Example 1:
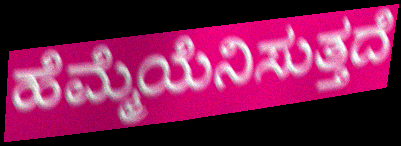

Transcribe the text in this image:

ಹೆಮ್ಮೆಯೆನಿಸುತ್ತದೆ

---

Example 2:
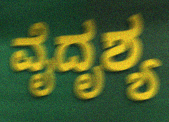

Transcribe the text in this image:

ವೈದೃಶ್ಯ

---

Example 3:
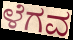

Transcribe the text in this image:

ಳೆಗವ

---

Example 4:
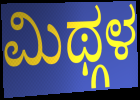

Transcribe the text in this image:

ಮಿಥ್ಗಳ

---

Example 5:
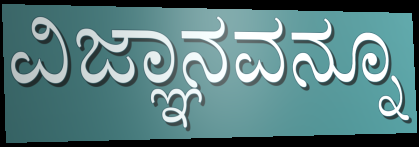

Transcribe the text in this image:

ವಿಜ್ಞಾನವನ್ನೂ